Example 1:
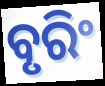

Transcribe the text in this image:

ବୃରିଂ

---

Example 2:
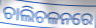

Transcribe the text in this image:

ଚାଲିଚଳନରେ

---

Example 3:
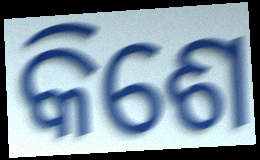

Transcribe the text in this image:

କିଶେ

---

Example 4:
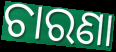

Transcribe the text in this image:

ଚାରଣା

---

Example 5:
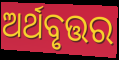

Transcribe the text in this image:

ଅର୍ଥବୃତ୍ତର